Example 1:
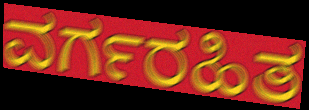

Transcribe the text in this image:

ವರ್ಗರಹಿತ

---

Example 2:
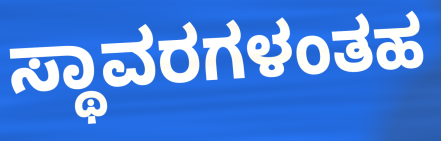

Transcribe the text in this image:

ಸ್ಥಾವರಗಳಂತಹ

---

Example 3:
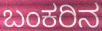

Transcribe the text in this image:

ಬಂಕರಿನ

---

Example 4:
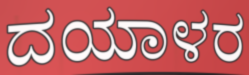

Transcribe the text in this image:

ದಯಾಳರ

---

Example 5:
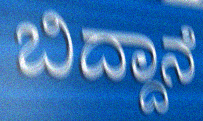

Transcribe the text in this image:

ಬಿದ್ದಾನೆ